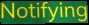
Notifying